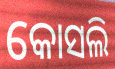
କୋସଲି